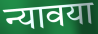
न्यावया